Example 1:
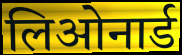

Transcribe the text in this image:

लिओनार्ड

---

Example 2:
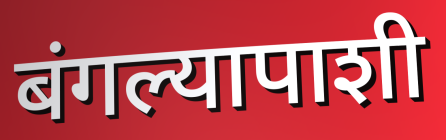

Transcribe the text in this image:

बंगल्यापाशी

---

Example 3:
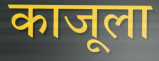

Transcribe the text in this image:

काजूला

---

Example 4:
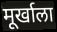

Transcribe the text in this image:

मूर्खाला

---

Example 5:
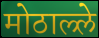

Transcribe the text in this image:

मोठाल्ले